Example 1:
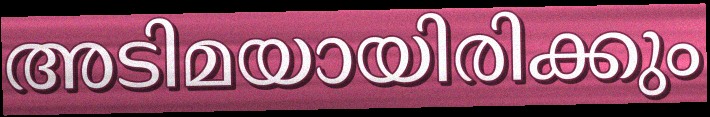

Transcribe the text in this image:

അടിമയായിരിക്കും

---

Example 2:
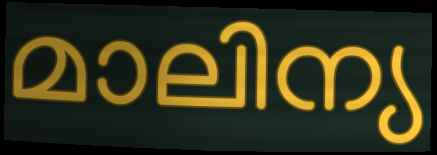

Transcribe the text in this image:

മാലിന്യ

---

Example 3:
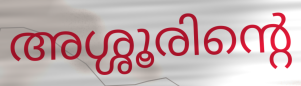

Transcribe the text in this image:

അശ്ശൂരിന്റെ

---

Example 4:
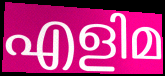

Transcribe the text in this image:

എളിമ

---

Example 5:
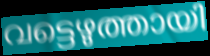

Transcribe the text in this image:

വട്ടെഴുത്തായി